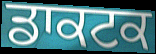
ਡਾਕਟਕ